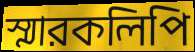
স্মারকলিপি